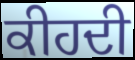
ਕੀਹਦੀ